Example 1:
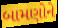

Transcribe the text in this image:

બામણોને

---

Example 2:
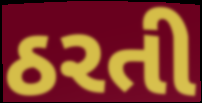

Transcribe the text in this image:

ઠરતી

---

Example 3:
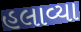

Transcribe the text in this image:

હલાવ્યા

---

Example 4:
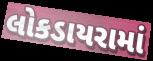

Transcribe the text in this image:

લોકડાયરામાં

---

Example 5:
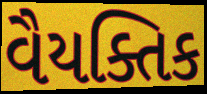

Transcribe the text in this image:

વૈયક્તિક